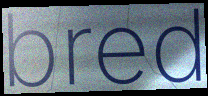
bred